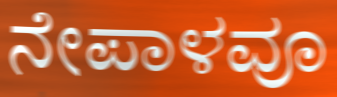
ನೇಪಾಳವೂ